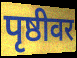
पृष्ठीवर